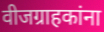
वीजग्राहकांना